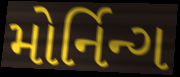
મોર્નિન્ગ